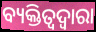
ବ୍ୟକ୍ତିତ୍ୱଦ୍ୱାରା